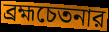
ব্রহ্মচেতনার